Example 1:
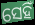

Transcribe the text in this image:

ସେହିଁ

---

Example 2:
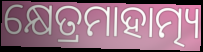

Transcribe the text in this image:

କ୍ଷେତ୍ରମାହାତ୍ମ୍ୟ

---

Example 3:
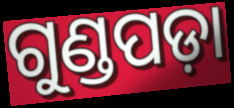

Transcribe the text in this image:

ଗୁଣ୍ଡପଡ଼ା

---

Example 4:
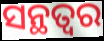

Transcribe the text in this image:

ସନ୍ଥତ୍ବର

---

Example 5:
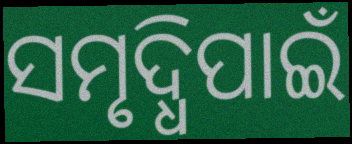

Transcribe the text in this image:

ସମୃଦ୍ଧିପାଇଁ